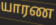
யாரண